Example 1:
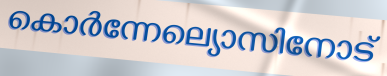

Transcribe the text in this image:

കൊർന്നേല്യൊസിനോട്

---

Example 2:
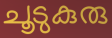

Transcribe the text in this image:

ചൂടുകുരു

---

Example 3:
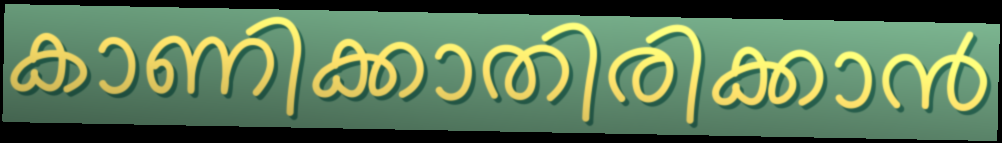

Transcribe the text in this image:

കാണിക്കാതിരിക്കാൻ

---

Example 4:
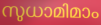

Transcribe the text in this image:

സുധാമിമാം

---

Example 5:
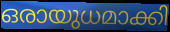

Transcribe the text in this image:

ഒരായുധമാക്കി